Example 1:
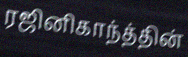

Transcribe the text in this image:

ரஜினிகாந்த்தின்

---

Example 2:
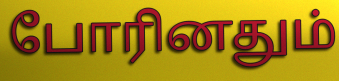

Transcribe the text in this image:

போரினதும்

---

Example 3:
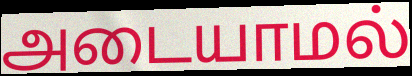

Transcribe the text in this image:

அடையாமல்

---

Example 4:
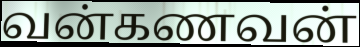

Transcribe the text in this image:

வன்கணவன்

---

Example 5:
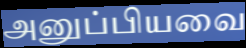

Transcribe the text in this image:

அனுப்பியவை